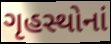
ગૃહસ્થોનાં